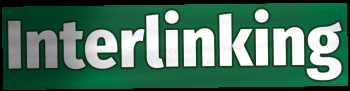
Interlinking